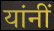
यांनीं